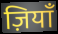
ज़ियाँ